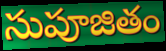
సుపూజితం